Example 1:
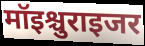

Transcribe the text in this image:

मॉइश्चुराइजर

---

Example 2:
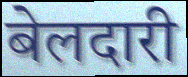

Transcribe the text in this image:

बेलदारी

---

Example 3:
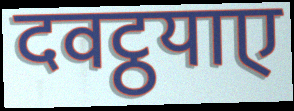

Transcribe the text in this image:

दवट्ठयाए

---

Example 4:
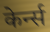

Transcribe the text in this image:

केर्न्स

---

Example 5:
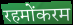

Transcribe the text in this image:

रहमोंकरम